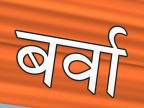
बर्वा